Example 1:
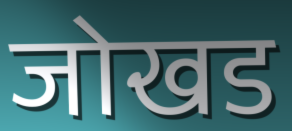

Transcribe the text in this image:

जोखड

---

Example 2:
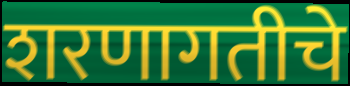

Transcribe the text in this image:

शरणागतीचे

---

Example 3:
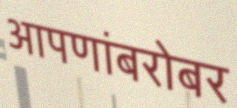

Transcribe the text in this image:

आपणांबरोबर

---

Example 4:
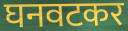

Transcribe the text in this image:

घनवटकर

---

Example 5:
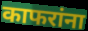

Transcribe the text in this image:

काफरांना